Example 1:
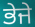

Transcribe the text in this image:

ਭੇਜੇ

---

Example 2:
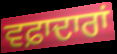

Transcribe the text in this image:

ਵਫ਼ਾਦਾਰਾਂ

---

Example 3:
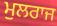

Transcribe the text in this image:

ਮੁਲਰਾਜ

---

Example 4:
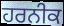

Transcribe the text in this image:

ਹਰਨੀਕ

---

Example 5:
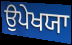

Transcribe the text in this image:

ਉਪੇਖਯਾ